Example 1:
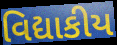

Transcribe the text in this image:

વિદ્યાકીય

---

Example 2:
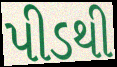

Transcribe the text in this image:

પીડથી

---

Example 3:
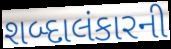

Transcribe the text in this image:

શબ્દાલંકારની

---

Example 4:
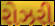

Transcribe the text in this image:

રોઝરી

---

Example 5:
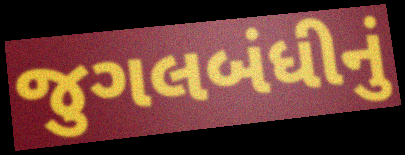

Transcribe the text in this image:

જુગલબંધીનું